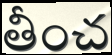
తీంచ